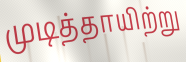
முடித்தாயிற்று